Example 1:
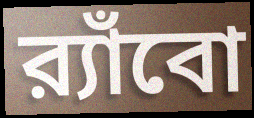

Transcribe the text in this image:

র‍্যাঁবো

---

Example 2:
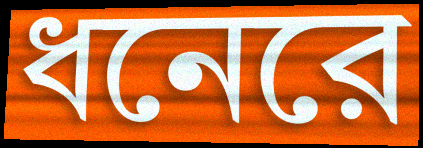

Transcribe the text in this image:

ধনেরে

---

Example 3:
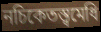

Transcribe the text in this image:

নচিকেতস্ত্বমেধি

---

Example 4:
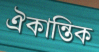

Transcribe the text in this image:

ঐকান্তিক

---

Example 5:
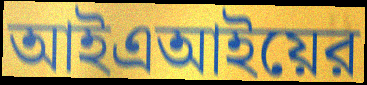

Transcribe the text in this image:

আইএআইয়ের